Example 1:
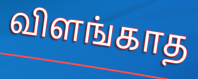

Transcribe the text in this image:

விளங்காத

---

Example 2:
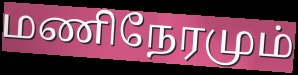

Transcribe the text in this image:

மணிநேரமும்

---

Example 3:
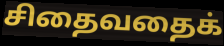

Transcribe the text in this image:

சிதைவதைக்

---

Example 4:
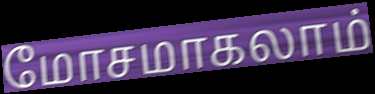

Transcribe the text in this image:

மோசமாகலாம்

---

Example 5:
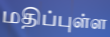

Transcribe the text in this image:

மதிப்புள்ள